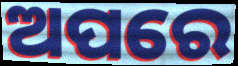
ଅପରେ